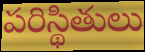
పరిస్థితులు